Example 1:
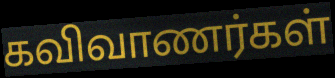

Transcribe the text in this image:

கவிவாணர்கள்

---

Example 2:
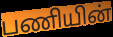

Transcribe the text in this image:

பணியின்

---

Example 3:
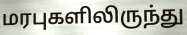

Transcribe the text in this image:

மரபுகளிலிருந்து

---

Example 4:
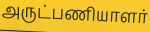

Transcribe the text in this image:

அருட்பணியாளர்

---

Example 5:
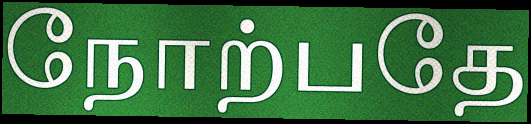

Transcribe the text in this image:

நோற்பதே